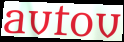
autou